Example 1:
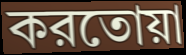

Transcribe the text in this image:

করতোয়া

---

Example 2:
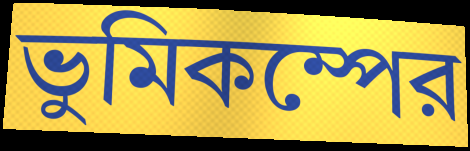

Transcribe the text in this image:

ভুমিকম্পের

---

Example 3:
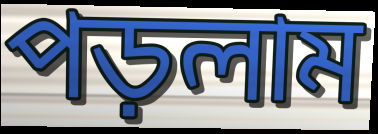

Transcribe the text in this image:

পড়লাম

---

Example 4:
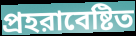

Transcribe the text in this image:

প্রহরাবেষ্টিত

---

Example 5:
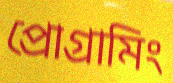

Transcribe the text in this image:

প্রোগ্রামিং